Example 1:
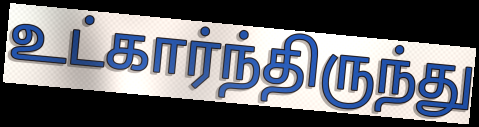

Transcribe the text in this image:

உட்கார்ந்திருந்து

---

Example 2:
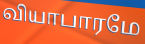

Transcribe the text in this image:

வியாபாரமே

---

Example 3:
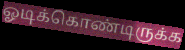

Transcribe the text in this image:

ஓடிக்கொண்டிருக்க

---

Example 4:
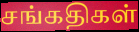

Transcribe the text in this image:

சங்கதிகள்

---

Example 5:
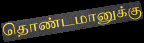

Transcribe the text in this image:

தொண்டமானுக்கு